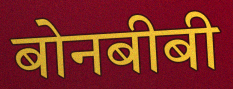
बोनबीबी